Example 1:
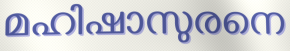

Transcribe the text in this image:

മഹിഷാസുരനെ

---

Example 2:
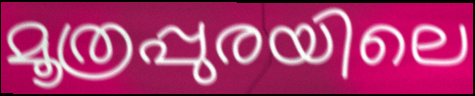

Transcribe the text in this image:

മൂത്രപ്പുരയിലെ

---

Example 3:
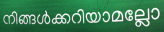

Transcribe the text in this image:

നിങ്ങൾക്കറിയാമല്ലോ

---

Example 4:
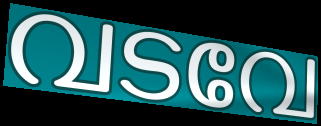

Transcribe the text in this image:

വടവേ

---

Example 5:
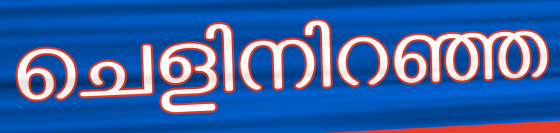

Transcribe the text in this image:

ചെളിനിറഞ്ഞ